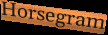
Horsegram